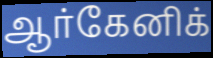
ஆர்கேனிக்